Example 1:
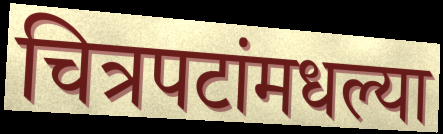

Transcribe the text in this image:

चित्रपटांमधल्या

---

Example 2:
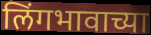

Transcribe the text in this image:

लिंगभावाच्या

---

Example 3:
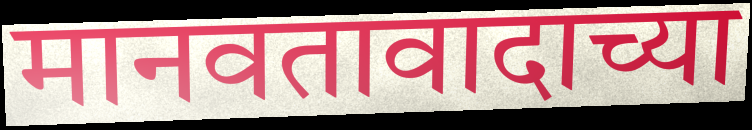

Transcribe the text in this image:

मानवतावादाच्या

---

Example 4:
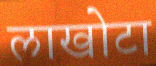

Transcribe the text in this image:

लाखोटा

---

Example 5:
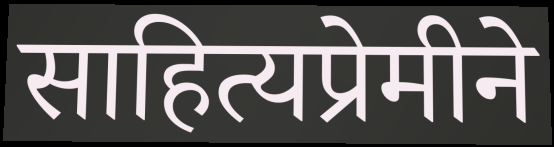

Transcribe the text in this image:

साहित्यप्रेमीने